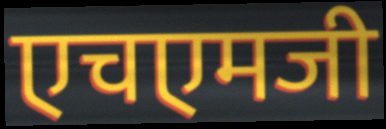
एचएमजी